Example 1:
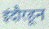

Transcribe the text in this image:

इंदौरहून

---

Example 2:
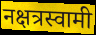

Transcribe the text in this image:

नक्षत्रस्वामी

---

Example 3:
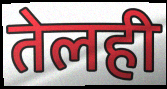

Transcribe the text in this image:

तेलही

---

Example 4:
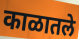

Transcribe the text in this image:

काळातले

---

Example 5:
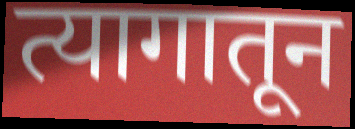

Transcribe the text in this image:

त्यागातून